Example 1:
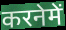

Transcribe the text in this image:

करनेमें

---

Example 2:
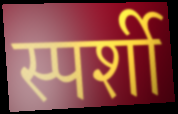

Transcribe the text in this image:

स्पर्शी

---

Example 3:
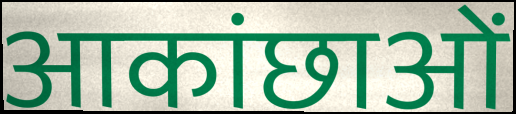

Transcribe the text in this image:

आकांछाओं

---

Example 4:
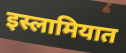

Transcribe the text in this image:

इस्लामियात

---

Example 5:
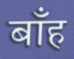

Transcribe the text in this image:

बाँह